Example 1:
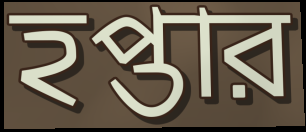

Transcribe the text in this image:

হপ্তার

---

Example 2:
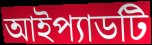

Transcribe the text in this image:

আইপ্যাডটি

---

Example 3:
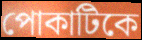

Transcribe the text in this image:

পোকাটিকে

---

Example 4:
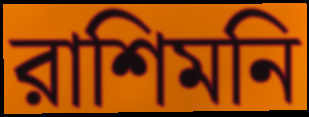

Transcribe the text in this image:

রাশিমনি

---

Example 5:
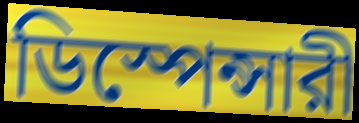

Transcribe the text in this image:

ডিস্পেন্সারী